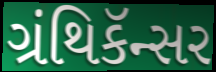
ગ્રંથિકૅન્સર